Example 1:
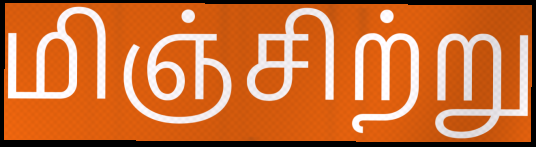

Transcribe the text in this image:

மிஞ்சிற்று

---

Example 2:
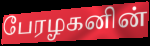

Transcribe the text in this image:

பேரழகனின்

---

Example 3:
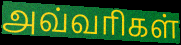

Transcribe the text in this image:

அவ்வரிகள்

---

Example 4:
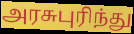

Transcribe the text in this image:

அரசுபுரிந்து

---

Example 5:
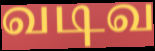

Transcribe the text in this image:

வடிவ